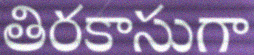
తిరకాసుగా